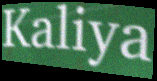
Kaliya